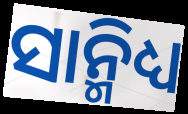
ସାନ୍ମିଧ୍ୟ